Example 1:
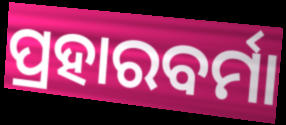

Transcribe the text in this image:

ପ୍ରହାରବର୍ମା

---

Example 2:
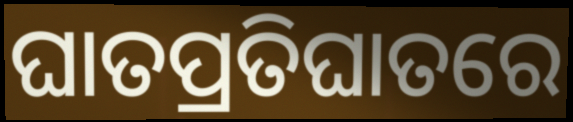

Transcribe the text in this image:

ଘାତପ୍ରତିଘାତରେ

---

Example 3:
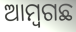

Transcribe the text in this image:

ଆମ୍ୱଗଛ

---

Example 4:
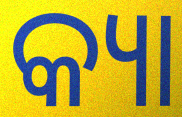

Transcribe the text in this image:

କ୍ୟା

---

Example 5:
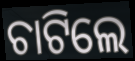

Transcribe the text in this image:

ଚାଟିଲେ